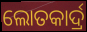
ଲୋତକାର୍ଦ୍ର